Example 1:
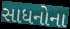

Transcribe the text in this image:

સાધનોના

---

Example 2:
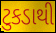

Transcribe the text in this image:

ટુકડાથી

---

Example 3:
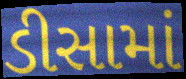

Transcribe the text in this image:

ડીસામાં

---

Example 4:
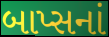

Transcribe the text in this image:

બાપ્સનાં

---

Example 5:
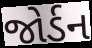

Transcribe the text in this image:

જોર્ડન